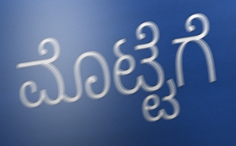
ಮೊಟ್ಟೆಗೆ